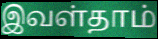
இவள்தாம்